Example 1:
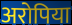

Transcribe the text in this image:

अरोपिया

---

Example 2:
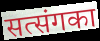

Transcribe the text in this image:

सत्संगका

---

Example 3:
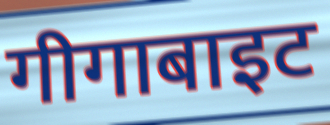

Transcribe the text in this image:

गीगाबाइट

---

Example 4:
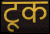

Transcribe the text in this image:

टूक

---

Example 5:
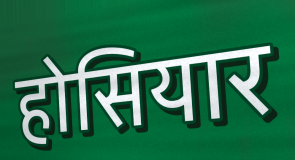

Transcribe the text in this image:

होसियार